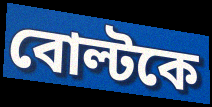
বোল্টকে